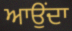
ਆਉੰਦਾ